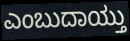
ಎಂಬುದಾಯ್ತು